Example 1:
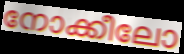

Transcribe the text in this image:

നോക്കീലോ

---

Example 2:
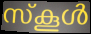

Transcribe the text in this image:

സ്‌കൂൾ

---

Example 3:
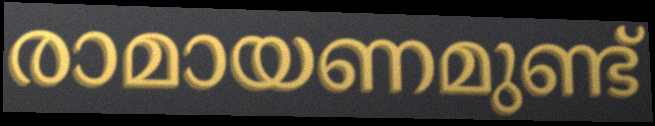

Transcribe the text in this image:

രാമായണമുണ്ട്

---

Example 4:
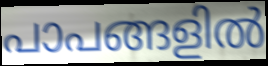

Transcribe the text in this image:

പാപങ്ങളിൽ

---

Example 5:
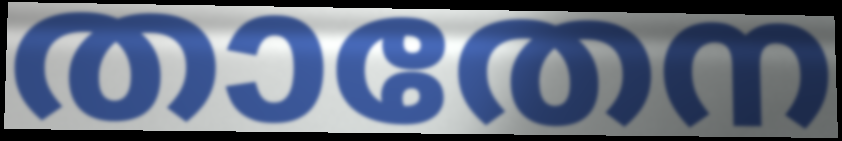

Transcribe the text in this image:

താതേന